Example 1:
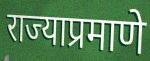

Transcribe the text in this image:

राज्याप्रमाणे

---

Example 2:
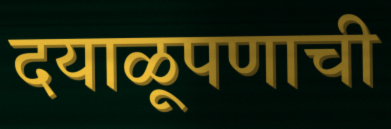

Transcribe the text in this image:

दयाळूपणाची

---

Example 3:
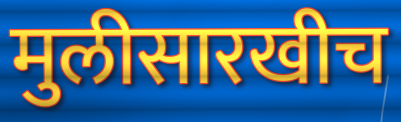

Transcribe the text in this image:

मुलीसारखीच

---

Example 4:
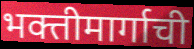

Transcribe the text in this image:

भक्तीमार्गाची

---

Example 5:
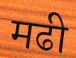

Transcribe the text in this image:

मढी